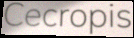
Cecropis